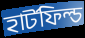
হার্টফিল্ড